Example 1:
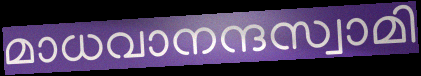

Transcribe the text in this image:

മാധവാനന്ദസ്വാമി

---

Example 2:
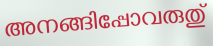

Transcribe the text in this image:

അനങ്ങിപ്പോവരുതു്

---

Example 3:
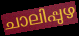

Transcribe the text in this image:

ചാലിപ്പുഴ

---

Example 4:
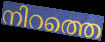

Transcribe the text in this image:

നിറത്തെ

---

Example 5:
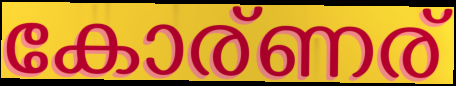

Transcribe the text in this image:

കോര്ണര്